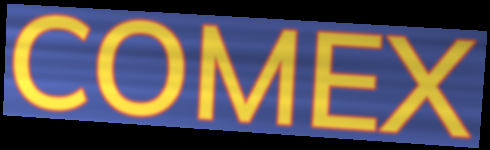
COMEX